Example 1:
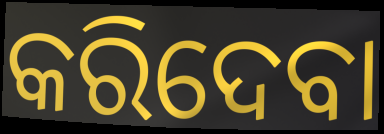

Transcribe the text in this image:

କରିଦେବା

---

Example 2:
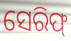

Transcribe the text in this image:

ସେରିଫ୍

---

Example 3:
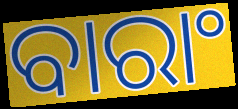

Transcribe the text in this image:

ବାରାଂ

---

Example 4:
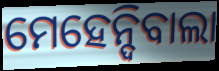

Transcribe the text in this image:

ମେହେନ୍ଦିବାଲା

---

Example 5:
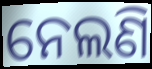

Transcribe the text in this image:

ନେଲଣି